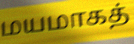
மயமாகத்